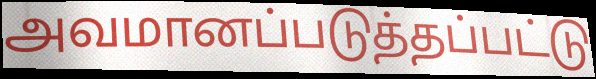
அவமானப்படுத்தப்பட்டு